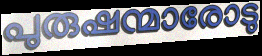
പുരുഷന്മാരോടു